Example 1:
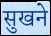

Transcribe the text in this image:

सुखने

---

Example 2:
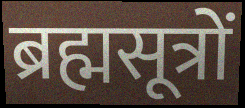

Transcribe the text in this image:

ब्रह्मसूत्रों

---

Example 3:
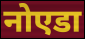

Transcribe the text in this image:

नोएडा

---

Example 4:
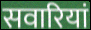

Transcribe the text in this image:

सवारियां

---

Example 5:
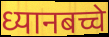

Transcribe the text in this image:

ध्यानबच्चे